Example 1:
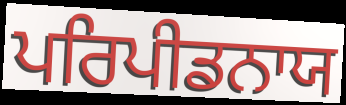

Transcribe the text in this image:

ਪਰਿਪੀਡਨਾਯ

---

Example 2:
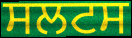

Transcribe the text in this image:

ਸਲਟਸ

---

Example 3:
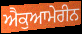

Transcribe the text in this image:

ਐਕੁਆਮੇਰੀਨ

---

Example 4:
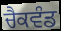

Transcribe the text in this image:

ਚੈਕਵੰਡ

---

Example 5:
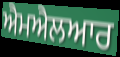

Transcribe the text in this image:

ਐਮਐਲਆਰ